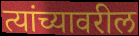
त्यांच्यावरील